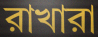
রাখারা